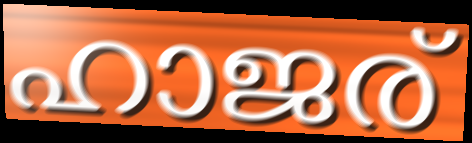
ഹാജര്